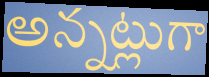
అన్నట్లుగా